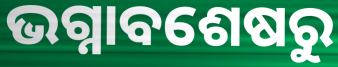
ଭଗ୍ନାବଶେଷରୁ